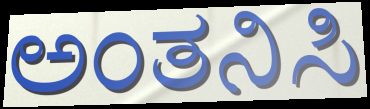
ಅಂತನಿಸಿ